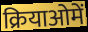
क्रियाओमें